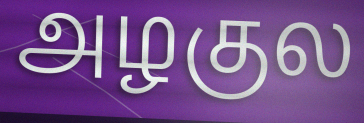
அழகுல